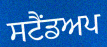
ਸਟੈਂਡਅਪ